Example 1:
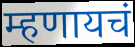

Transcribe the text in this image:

म्हणायचं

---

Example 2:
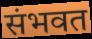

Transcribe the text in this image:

संभवत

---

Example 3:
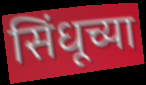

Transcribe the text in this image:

सिंधूच्या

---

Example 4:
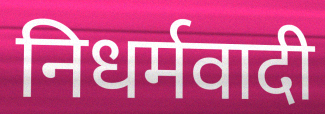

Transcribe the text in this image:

निधर्मवादी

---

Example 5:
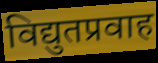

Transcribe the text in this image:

विद्युतप्रवाह